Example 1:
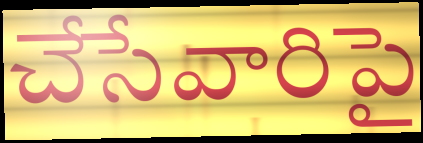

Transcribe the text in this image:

చేసేవారిపై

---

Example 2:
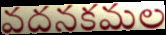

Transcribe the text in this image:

వదనకమల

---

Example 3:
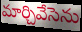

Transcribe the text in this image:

మార్చివేసెను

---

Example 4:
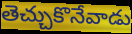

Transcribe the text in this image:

తెచ్చుకొనేవాడు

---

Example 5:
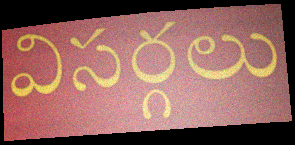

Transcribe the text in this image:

విసర్గలు